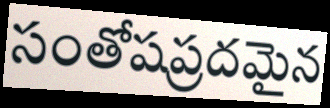
సంతోషప్రదమైన